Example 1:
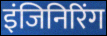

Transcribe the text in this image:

इंजिनिरिंग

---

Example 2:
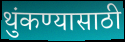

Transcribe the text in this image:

थुंकण्यासाठी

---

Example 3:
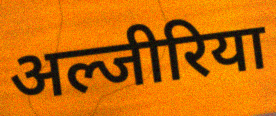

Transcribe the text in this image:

अल्जीरिया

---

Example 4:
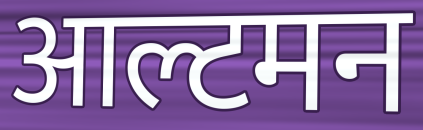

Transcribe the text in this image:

आल्टमन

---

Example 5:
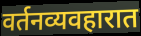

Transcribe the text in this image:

वर्तनव्यवहारात